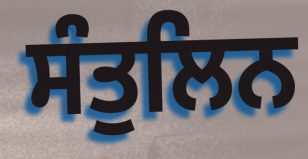
ਸੰਤੁਲਿਨ